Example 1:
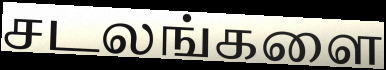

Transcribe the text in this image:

சடலங்களை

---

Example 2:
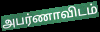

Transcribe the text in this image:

அபர்ணாவிடம்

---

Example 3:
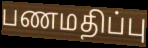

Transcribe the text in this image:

பணமதிப்பு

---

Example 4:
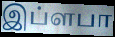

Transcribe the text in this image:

இப்ளபா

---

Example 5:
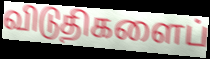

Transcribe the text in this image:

விடுதிகளைப்